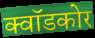
क्वॉडकोर